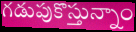
గడుపుకొస్తున్నాం